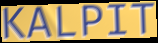
KALPIT